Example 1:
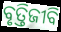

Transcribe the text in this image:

ବୃତ୍ତିଜୀବି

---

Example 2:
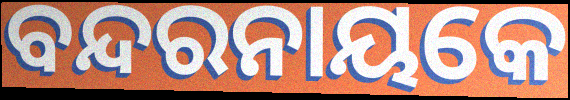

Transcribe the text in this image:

ବନ୍ଦରନାୟକେ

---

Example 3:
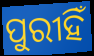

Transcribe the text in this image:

ପୁରୀହିଁ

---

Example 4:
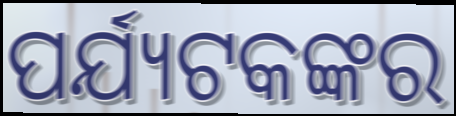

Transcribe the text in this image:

ପର୍ଯ୍ୟଟକଙ୍କର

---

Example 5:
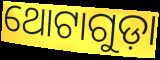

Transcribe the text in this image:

ଥୋଟାଗୁଡ଼ା